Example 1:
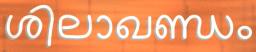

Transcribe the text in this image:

ശിലാഖണ്ഡം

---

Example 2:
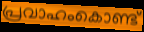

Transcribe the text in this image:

പ്രവാഹംകൊണ്ട്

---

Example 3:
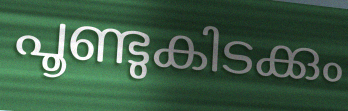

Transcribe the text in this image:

പൂണ്ടുകിടക്കും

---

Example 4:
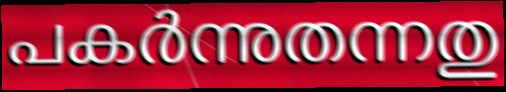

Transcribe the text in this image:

പകർന്നുതന്നതു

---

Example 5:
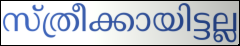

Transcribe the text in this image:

സ്ത്രീക്കായിട്ടല്ല